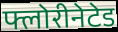
फ्लोरीनेटेड